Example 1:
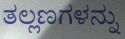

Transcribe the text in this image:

ತಲ್ಲಣಗಳನ್ನು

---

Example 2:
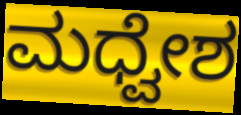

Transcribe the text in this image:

ಮಧ್ವೇಶ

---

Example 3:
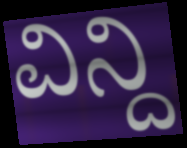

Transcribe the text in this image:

ವಿನ್ದಿ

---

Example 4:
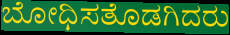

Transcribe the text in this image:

ಬೋಧಿಸತೊಡಗಿದರು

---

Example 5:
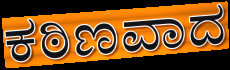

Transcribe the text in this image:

ಕಠಿಣವಾದ